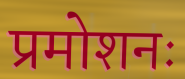
प्रमोशनः